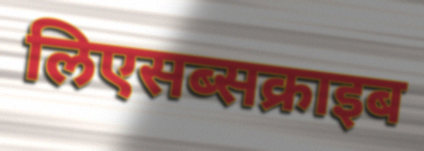
लिएसब्सक्राइब